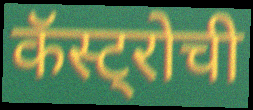
कॅस्ट्रोची